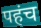
पहंच